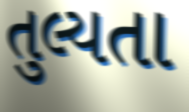
તુલ્યતા